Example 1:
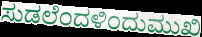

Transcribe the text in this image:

ಸುಡಲೆಂದಳಿಂದುಮುಖಿ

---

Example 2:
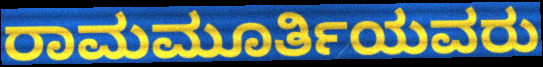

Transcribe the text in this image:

ರಾಮಮೂರ್ತಿಯವರು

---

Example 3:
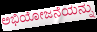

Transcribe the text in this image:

ಅಭಿಯೋಜನೆಯನ್ನು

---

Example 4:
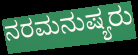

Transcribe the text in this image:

ನರಮನುಷ್ಯರು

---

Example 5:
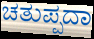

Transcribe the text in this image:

ಚತುಪ್ಪದಾ